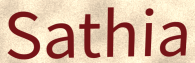
Sathia